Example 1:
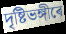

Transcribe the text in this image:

দৃষ্টিভঙ্গীৰে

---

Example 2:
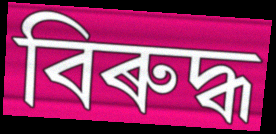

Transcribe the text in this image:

বিৰুদ্ধ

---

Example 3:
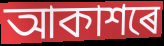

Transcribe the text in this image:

আকাশৰে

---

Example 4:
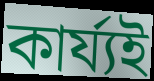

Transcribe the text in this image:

কাৰ্য্যই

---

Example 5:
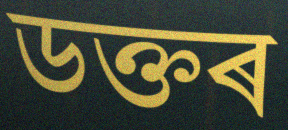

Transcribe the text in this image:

ডক্তৰ